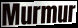
Murmur